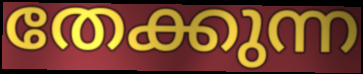
തേക്കുന്ന